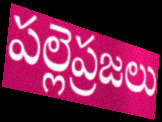
పల్లెప్రజలు